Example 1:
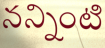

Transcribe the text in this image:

నన్నింటి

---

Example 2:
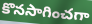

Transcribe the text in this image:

కొనసాగించగా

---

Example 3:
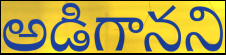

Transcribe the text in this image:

అడిగానని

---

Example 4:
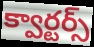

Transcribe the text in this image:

క్వార్టర్స్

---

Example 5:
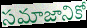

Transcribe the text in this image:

సమాజానికో